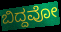
ಬಿದ್ದವೋ